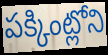
పక్కింట్లోని